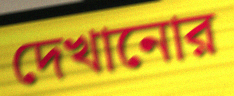
দেখানোর